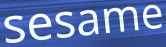
sesame